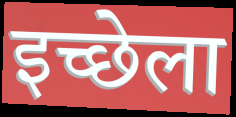
इच्छेला